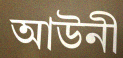
আউনী